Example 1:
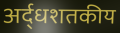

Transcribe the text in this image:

अर्द्धशतकीय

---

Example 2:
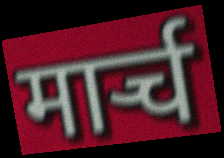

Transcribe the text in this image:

मार्र्च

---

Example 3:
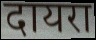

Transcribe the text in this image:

दायरा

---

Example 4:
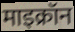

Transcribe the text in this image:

माइक्रॉन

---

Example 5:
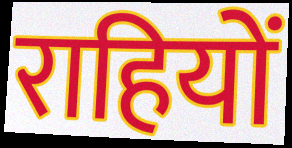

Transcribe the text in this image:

राहियों